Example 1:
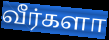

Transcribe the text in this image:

வீர்களா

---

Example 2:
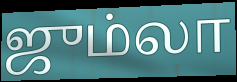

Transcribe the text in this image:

ஜும்லா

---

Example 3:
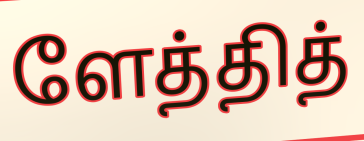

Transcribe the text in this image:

ளேத்தித்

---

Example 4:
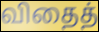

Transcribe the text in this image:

விதைத்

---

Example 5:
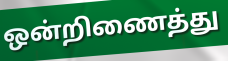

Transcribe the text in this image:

ஒன்றிணைத்து